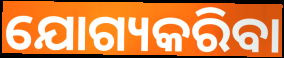
ଯୋଗ୍ୟକରିବା